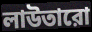
লাউতারো